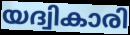
യദ്വികാരി